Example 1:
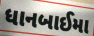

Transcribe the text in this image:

ધાનબાઈમા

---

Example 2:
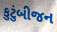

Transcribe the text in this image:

કુટુંબીજન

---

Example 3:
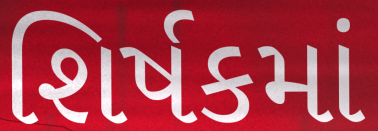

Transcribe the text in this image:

શિર્ષકમાં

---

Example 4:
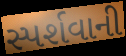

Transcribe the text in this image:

સ્પર્શવાની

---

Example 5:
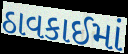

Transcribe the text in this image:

ઠાવકાઈમાં